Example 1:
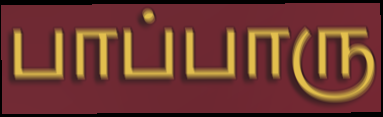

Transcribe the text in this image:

பாப்பாரு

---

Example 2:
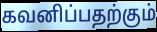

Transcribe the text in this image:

கவனிப்பதற்கும்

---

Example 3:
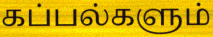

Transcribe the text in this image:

கப்பல்களும்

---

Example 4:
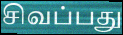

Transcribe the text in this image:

சிவப்பது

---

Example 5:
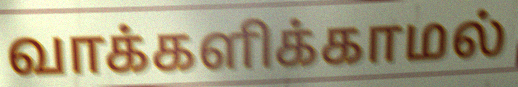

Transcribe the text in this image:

வாக்களிக்காமல்